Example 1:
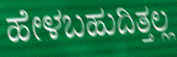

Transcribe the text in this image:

ಹೇಳಬಹುದಿತ್ತಲ್ಲ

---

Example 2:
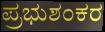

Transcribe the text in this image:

ಪ್ರಭುಶಂಕರ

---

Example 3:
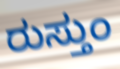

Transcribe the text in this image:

ರುಸ್ತುಂ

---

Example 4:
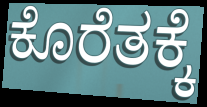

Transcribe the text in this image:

ಕೊರೆತಕ್ಕೆ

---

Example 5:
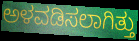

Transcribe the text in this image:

ಅಳವಡಿಸಲಾಗಿತ್ತು